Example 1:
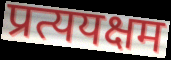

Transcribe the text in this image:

प्रत्ययक्षम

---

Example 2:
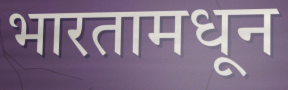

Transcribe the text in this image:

भारतामधून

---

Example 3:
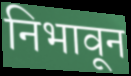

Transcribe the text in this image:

निभावून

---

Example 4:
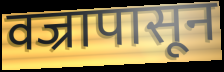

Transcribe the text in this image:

वज्रापासून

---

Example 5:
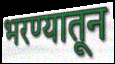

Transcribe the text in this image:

भरण्यातून